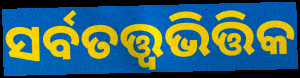
ସର୍ବତତ୍ତ୍ୱଭିତ୍ତିକ